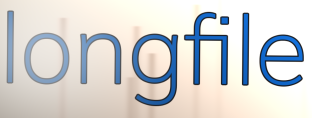
longfile